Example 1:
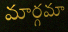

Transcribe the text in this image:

మార్గమా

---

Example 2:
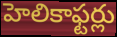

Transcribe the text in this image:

హెలికాఫ్టర్లు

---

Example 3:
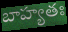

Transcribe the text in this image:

బాహ్యతః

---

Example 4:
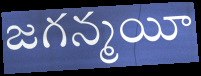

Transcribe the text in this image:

జగన్మయీ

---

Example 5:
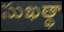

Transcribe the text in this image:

సుఖత్థా